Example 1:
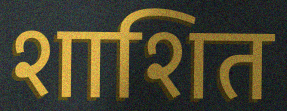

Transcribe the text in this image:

शाशित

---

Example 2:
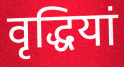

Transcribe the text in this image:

वृद्धियां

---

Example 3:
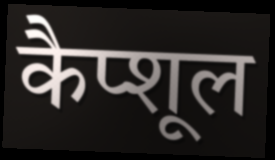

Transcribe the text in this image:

कैप्शूल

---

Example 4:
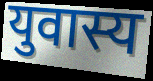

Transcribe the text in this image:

युवास्य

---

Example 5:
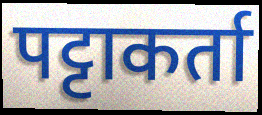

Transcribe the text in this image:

पट्टाकर्ता